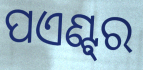
ପଏଣ୍ଟ୍‌ର